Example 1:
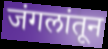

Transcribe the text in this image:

जंगलांतून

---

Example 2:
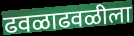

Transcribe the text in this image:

ढवळाढवळीला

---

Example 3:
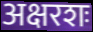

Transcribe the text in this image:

अक्षरशः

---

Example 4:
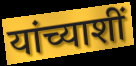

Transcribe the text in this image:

यांच्याशीं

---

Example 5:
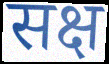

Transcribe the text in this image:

सक्ष